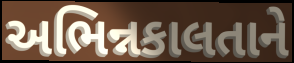
અભિન્નકાલતાને